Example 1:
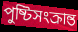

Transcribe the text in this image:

পুষ্টিসংক্রান্ত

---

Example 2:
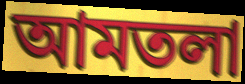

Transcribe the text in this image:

আমতলা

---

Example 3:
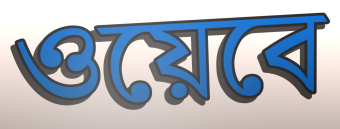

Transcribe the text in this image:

ওয়েবে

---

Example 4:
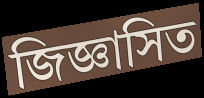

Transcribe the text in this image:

জিজ্ঞাসিত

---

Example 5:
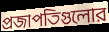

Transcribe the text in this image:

প্রজাপতিগুলোর